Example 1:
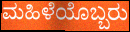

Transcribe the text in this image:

ಮಹಿಳೆಯೊಬ್ಬರು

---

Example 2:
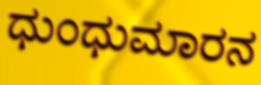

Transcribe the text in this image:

ಧುಂಧುಮಾರನ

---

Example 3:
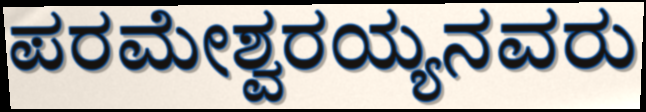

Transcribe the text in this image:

ಪರಮೇಶ್ವರಯ್ಯನವರು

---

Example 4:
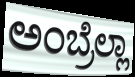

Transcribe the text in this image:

ಅಂಬ್ರೆಲ್ಲಾ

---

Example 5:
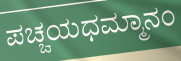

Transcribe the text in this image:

ಪಚ್ಚಯಧಮ್ಮಾನಂ